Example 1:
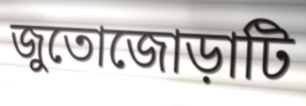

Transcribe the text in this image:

জুতোজোড়াটি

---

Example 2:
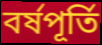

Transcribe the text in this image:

বর্ষপূর্তি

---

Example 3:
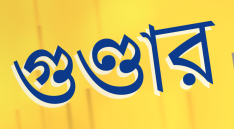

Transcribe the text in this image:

গুণ্ডার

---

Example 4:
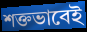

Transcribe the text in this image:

শক্তভাবেই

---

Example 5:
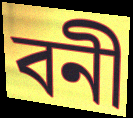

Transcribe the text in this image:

বনী